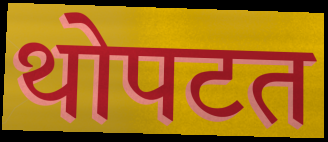
थोपटत